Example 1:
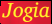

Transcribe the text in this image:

Jogia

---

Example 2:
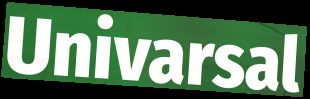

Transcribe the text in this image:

Univarsal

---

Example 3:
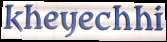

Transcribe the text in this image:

kheyechhi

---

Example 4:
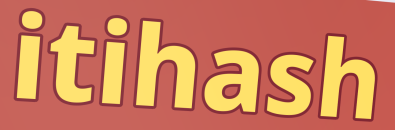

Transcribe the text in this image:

itihash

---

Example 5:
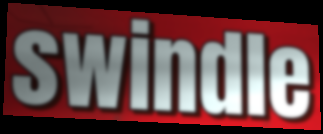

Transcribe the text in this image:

swindle